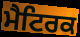
ਮੈਟਿਰਕ